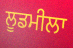
ਲੂਡਮੀਲਾ